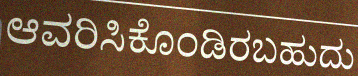
ಆವರಿಸಿಕೊಂಡಿರಬಹುದು